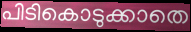
പിടികൊടുക്കാതെ